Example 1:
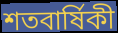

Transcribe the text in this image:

শতবার্ষিকী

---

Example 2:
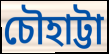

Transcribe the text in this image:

চৌহাট্টা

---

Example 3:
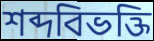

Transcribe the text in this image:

শব্দবিভক্তি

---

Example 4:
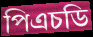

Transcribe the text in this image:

পিএচডি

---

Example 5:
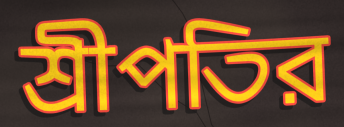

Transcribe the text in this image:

শ্রীপতির